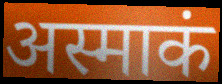
अस्माकं